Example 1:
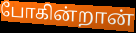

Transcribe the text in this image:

போகின்றான்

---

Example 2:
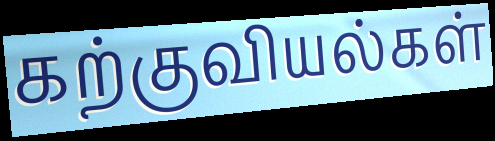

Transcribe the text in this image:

கற்குவியல்கள்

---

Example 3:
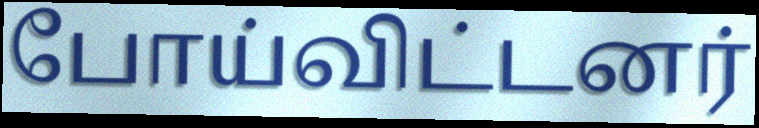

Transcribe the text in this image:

போய்விட்டனர்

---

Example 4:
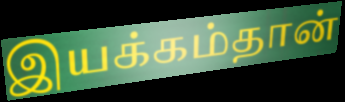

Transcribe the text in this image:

இயக்கம்தான்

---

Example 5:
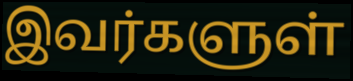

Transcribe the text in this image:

இவர்களுள்